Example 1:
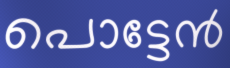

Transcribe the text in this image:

പൊട്ടേൻ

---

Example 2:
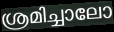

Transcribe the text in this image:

ശ്രമിച്ചാലോ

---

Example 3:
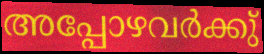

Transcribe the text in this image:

അപ്പോഴവർക്കു്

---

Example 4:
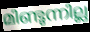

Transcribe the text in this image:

മിണ്ടുന്നില്ല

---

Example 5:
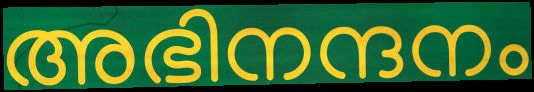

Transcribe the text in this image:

അഭിനന്ദനം